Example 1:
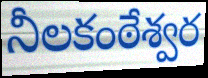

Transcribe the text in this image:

నీలకంఠేశ్వర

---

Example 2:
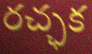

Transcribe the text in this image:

రచ్ఛక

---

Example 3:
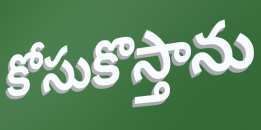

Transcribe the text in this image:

కోసుకొస్తాను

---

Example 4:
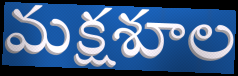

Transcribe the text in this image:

మక్షశూల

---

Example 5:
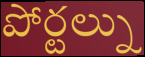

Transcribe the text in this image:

పోర్టల్ను